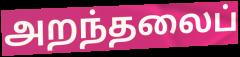
அறந்தலைப்